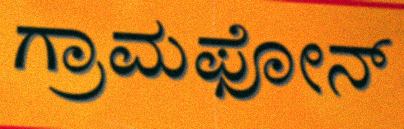
ಗ್ರಾಮಫೋನ್